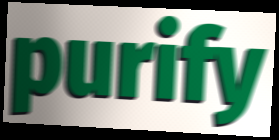
purify